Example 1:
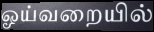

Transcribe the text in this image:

ஓய்வறையில்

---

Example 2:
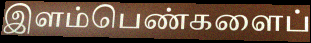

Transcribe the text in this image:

இளம்பெண்களைப்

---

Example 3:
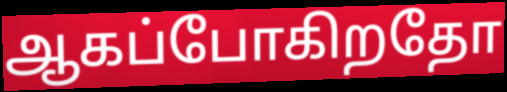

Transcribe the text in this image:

ஆகப்போகிறதோ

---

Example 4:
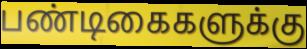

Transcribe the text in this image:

பண்டிகைகளுக்கு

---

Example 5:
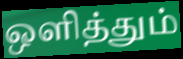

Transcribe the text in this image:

ஒளித்தும்